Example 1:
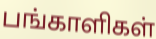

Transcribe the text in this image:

பங்காளிகள்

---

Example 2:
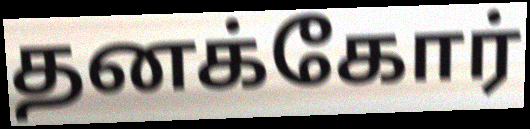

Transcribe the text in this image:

தனக்கோர்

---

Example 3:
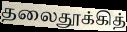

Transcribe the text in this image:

தலைதூக்கித்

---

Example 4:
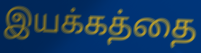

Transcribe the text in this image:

இயக்கத்தை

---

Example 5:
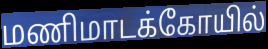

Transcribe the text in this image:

மணிமாடக்கோயில்